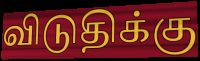
விடுதிக்கு